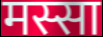
मस्‍सा